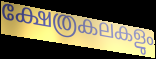
ക്ഷേത്രകലകളും